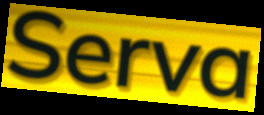
Serva